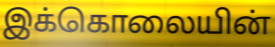
இக்கொலையின்